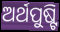
ଅର୍ଥପୁଷ୍ଟି